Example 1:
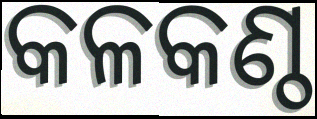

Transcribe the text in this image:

କଳକଣ୍ଠ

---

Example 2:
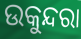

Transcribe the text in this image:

ଉକୁନ୍ଦରା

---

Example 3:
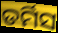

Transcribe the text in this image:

ଡର୍ମିସ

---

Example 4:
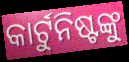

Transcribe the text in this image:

କାର୍ଟୁନିଷ୍ଟଙ୍କୁ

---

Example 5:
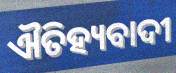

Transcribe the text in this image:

ଐତିହ୍ୟବାଦୀ